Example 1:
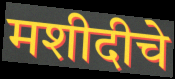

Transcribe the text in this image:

मशीदीचे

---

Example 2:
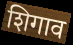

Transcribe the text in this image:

शिगाव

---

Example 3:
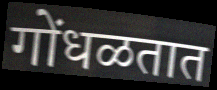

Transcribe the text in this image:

गोंधळतात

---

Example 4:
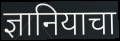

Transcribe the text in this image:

ज्ञानियाचा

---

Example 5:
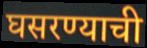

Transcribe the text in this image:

घसरण्याची